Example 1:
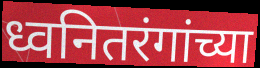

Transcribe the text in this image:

ध्वनितरंगांच्या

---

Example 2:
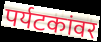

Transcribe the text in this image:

पर्यटकांवर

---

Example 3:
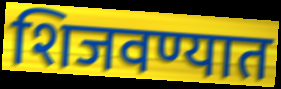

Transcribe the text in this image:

शिजवण्यात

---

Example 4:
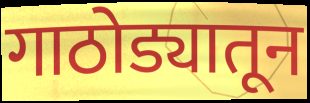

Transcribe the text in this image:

गाठोड्यातून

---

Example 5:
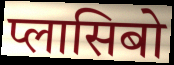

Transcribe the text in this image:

प्लासिबो